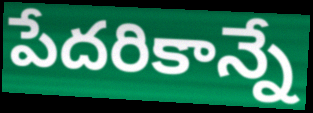
పేదరికాన్నే